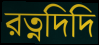
রত্নদিদি